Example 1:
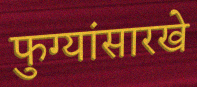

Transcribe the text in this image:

फुग्यांसारखे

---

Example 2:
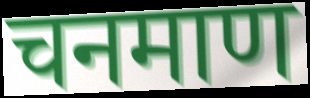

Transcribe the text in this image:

चनमाण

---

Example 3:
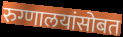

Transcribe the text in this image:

रुग्णालयांसोबत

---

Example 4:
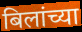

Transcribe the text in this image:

बिलांच्या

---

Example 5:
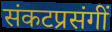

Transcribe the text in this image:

संकटप्रसंगीं